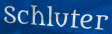
Schluter